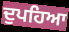
ਦੁਪਹਿਆ